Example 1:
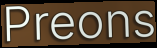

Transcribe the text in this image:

Preons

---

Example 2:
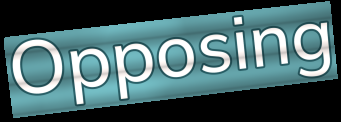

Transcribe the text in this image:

Opposing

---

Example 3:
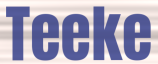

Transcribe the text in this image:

Teeke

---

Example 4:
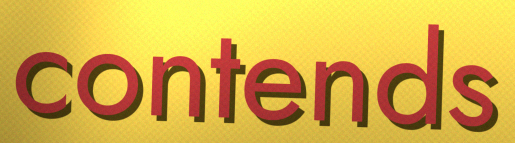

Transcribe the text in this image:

contends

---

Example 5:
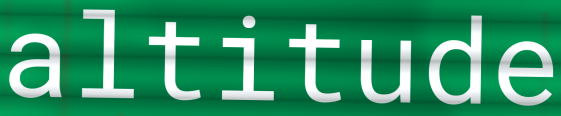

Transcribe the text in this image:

altitude